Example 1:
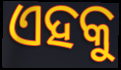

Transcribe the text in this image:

ଏହକୁ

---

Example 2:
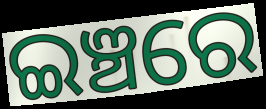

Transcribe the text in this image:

ଇଞ୍ଚରେ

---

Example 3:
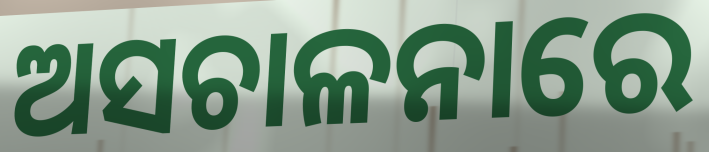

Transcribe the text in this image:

ଅସଚାଳନାରେ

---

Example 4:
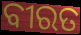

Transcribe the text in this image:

ବୀରତ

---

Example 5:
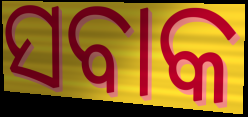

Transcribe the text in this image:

ସବାକ